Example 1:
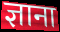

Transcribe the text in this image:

ज्ञाना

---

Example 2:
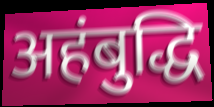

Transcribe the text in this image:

अहंबुद्धि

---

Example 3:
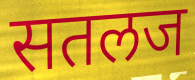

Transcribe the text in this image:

सतलज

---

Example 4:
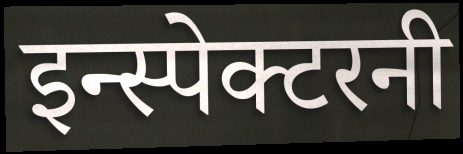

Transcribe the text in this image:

इन्स्पेक्टरनी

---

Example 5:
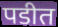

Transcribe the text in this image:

पडीत